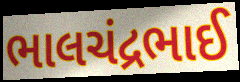
ભાલચંદ્રભાઈ